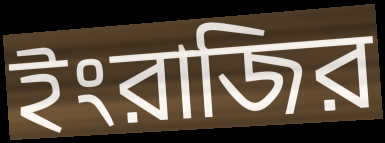
ইংরাজির